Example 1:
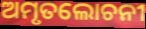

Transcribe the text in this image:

ଅମୃତଲୋଚନୀ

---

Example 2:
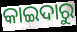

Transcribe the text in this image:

କାଇଦାରୁ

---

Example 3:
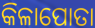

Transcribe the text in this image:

କିଳାପୋତା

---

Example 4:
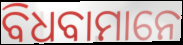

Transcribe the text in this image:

ବିଧବାମାନେ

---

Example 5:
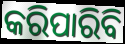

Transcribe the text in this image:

କରିପାରିବି